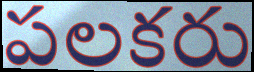
పలకరు